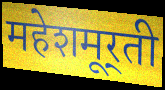
महेशमूर्ती